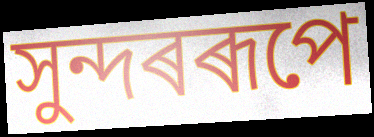
সুন্দৰৰূপে